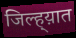
जिल्ह्य़ात